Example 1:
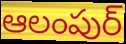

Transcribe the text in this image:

ఆలంపుర్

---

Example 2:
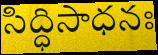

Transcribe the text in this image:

సిద్ధిసాధనః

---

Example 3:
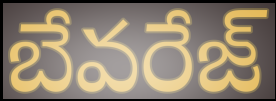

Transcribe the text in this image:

బేవరేజ్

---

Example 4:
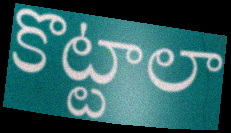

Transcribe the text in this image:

కొట్టాలా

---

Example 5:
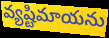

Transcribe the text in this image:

వ్యష్టిమాయను